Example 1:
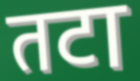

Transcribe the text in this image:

तटा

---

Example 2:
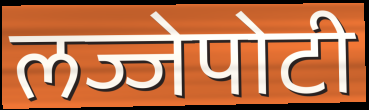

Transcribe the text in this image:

लज्जेपोटी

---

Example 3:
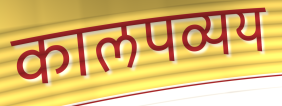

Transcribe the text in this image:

कालपव्यय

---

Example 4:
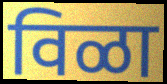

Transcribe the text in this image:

विळा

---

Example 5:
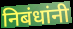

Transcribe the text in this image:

निबंधांनी